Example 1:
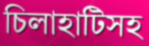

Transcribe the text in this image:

চিলাহাটিসহ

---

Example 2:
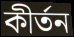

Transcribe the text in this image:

কীর্তন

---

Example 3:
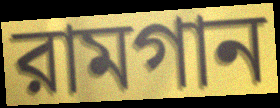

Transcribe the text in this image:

রামগান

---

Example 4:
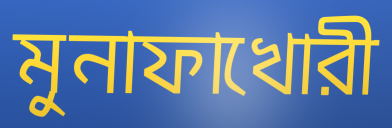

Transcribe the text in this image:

মুনাফাখোরী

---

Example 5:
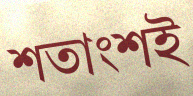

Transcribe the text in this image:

শতাংশই